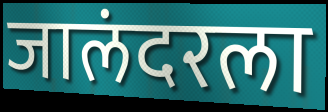
जालंदरला